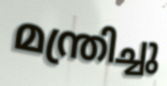
മന്ത്രിച്ചു